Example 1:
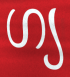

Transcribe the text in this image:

ഗ്യ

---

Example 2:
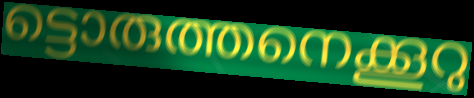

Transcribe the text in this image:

ട്ടൊരുത്തനെക്കൂറു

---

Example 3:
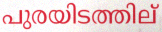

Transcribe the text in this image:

പുരയിടത്തില്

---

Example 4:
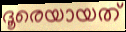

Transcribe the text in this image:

ദൂരെയായത്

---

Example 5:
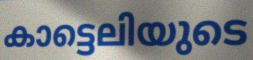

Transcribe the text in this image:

കാട്ടെലിയുടെ